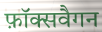
फ़ॉक्सवैगन